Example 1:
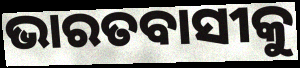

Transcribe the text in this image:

ଭାରତବାସୀକୁ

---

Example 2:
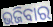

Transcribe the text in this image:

ଭଜିବାର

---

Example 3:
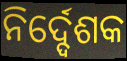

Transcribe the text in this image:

ନିର୍ଦ୍ଦେଶକ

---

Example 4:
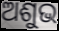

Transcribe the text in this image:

ଅଶୁଭ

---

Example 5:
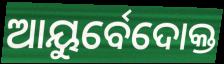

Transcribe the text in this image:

ଆୟୁର୍ବେଦୋକ୍ତ